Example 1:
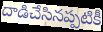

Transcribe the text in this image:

దాడిచేసినప్పటికీ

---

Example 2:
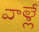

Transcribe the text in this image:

వాళ్లే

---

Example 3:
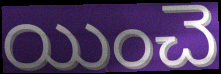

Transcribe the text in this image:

యించె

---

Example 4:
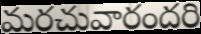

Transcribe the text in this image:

మరచువారందరి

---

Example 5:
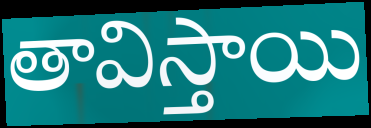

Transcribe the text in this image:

తావిస్తాయి